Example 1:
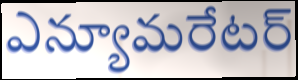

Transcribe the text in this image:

ఎన్యూమరేటర్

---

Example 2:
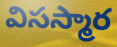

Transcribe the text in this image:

విసస్మార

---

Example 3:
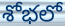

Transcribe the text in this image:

శోభలో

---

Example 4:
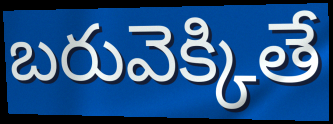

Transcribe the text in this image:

బరువెక్కితే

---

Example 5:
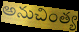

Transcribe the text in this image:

అనుచింత్య